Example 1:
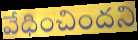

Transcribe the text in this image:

వేధించిందని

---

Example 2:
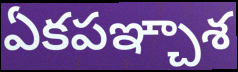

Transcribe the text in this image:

ఏకపఞ్చాశ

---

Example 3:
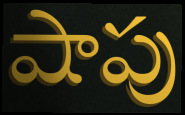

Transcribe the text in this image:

షాపు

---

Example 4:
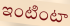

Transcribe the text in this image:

ఇంటింటా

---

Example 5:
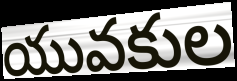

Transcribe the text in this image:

యువకుల